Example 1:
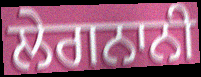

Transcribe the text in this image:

ਲੇਗਨਾਨੀ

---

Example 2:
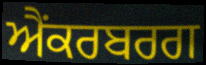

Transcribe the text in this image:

ਐਂਕਰਬਰਗ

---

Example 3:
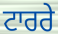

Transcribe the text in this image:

ਟਾਰਰੇ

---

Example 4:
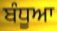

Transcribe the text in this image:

ਬੰਧੂਆ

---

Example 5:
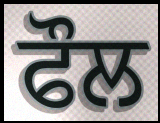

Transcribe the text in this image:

ਫੌਲ